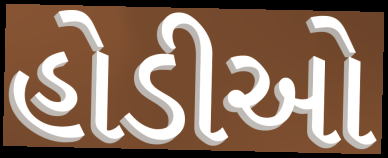
હોડીઓ